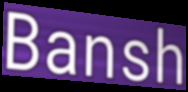
Bansh